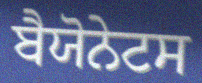
ਬੈਯੋਨੇਟਸ